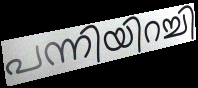
പന്നിയിറച്ചി